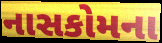
નાસકોમના